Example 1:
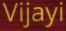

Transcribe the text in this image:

Vijayi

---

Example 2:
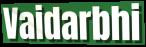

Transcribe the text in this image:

Vaidarbhi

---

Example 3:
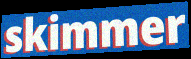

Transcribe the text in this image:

skimmer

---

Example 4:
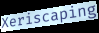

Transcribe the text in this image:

Xeriscaping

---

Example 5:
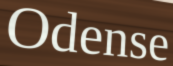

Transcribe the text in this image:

Odense